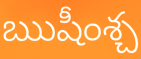
ఋషీంశ్చ